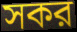
সকর